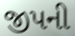
જીપની